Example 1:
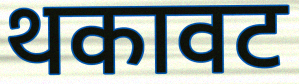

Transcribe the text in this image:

थकावट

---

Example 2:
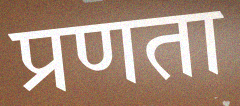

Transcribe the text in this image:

प्रणता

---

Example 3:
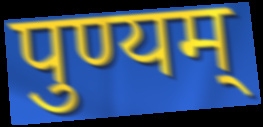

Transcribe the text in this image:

पुण्यम्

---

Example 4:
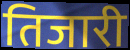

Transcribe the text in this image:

तिजारी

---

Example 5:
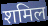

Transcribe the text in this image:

शमिल